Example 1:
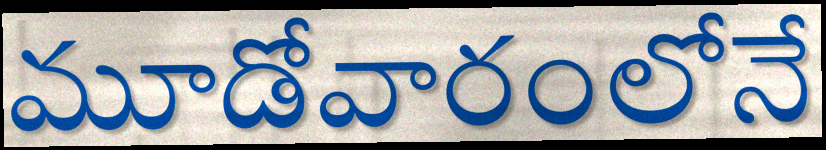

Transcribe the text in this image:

మూడోవారంలోనే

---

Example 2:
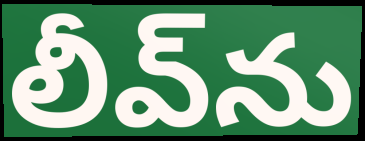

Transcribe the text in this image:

లీవ్‌ను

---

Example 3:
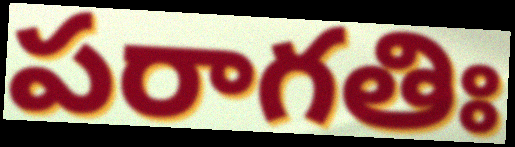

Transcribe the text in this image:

పరాగతిః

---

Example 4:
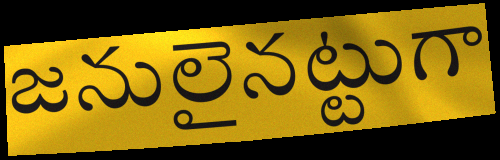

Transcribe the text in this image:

జనులైనట్టుగా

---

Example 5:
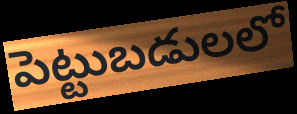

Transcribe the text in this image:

పెట్టుబడులలో